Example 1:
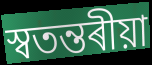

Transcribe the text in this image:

স্বতন্তৰীয়া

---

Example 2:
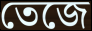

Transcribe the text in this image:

তেজে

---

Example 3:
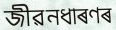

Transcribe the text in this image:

জীৱনধাৰণৰ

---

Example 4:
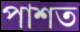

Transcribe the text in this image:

পাশত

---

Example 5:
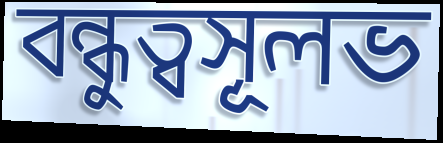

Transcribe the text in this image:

বন্ধুত্বসূলভ